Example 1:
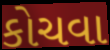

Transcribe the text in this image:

કોચવા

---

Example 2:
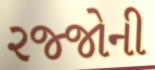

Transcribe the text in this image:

રજ્જોની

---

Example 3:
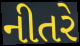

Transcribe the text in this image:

નીતરે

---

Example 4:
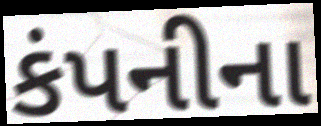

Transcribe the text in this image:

કંપનીના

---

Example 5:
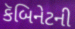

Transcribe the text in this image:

કૅબિનેટની